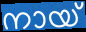
നായ്